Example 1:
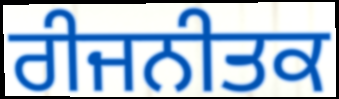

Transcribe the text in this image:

ਰੀਜਨੀਤਕ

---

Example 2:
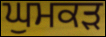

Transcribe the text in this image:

ਘੁਮਕੜ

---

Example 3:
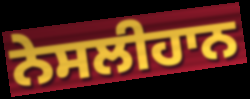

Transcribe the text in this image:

ਨੇਸਲੀਹਾਨ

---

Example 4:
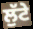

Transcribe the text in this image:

ਲੁੱਟੇ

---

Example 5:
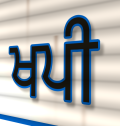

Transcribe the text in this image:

ਖਪੀ